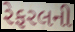
રેફરલની